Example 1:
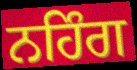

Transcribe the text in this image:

ਨਹਿੰਗ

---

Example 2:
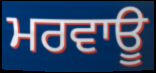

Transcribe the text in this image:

ਮਰਵਾਊ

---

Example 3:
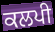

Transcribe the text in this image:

ਕਲਪੀ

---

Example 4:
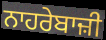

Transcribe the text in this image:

ਨਾਹਰੇਬਾਜ਼ੀ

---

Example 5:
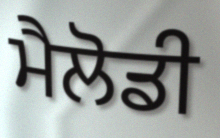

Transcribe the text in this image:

ਮੈਲੋਡੀ